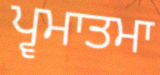
ਪ੍ਵਮਾਤਮਾ